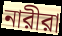
নারীরা